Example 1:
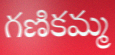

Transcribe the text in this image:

గణికమ్మ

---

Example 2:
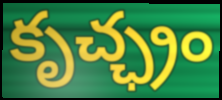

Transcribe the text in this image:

కృచ్ఛ్రం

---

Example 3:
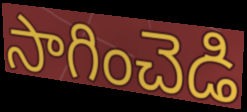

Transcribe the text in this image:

సాగించెడి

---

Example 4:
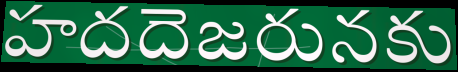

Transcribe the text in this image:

హదదెజరునకు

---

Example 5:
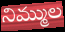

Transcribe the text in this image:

నిమ్ముల